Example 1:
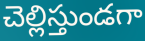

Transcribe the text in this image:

చెల్లిస్తుండగా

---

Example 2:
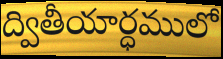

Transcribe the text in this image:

ద్వితీయార్ధములో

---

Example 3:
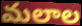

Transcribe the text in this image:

మలాల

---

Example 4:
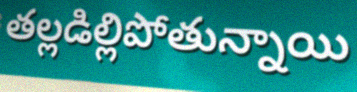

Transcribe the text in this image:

తల్లడిల్లిపోతున్నాయి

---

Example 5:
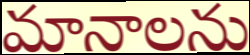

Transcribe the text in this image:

మానాలను